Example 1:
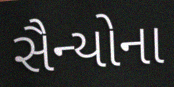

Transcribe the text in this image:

સૈન્યોના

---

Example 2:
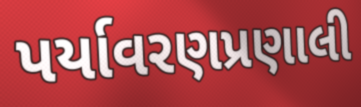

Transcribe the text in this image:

પર્યાવરણપ્રણાલી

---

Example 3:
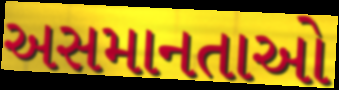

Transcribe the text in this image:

અસમાનતાઓ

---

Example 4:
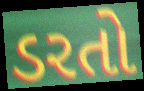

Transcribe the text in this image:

ડરતો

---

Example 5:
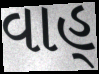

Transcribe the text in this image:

વાહ્